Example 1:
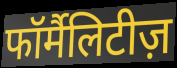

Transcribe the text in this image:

फॉर्मैलिटीज़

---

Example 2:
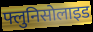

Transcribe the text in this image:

फ्लुनिसोलाइड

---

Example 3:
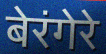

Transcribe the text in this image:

बेरंगेरे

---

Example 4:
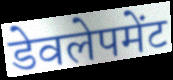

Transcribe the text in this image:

डेवलेपमेंट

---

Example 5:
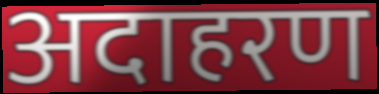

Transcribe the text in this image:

अदाहरण